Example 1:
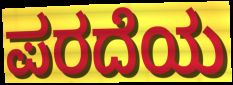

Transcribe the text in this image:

ಪರದೆಯ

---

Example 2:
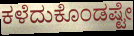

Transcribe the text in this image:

ಕಳೆದುಕೊಂಡಷ್ಟೇ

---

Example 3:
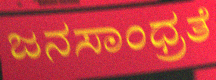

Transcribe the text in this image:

ಜನಸಾಂಧ್ರತೆ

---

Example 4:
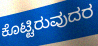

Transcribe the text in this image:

ಕೊಟ್ಟಿರುವುದರ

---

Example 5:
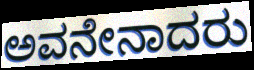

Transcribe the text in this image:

ಅವನೇನಾದರು